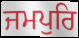
ਜਮਪੁਰਿ